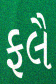
ફલૈ